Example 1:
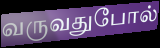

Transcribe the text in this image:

வருவதுபோல்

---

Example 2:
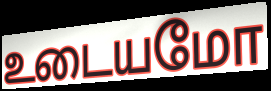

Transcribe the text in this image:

உடையமோ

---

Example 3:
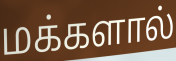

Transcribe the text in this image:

மக்களால்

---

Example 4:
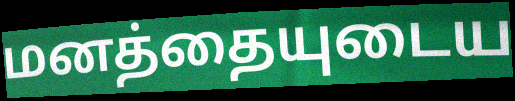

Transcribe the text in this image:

மனத்தையுடைய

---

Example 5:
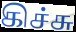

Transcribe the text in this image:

கிச்சு